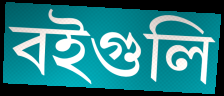
বইগুলি